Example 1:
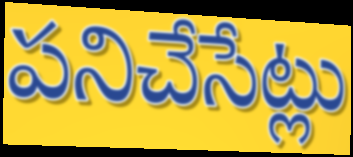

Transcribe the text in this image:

పనిచేసేట్లు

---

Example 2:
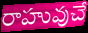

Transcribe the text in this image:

రాహువుచే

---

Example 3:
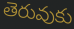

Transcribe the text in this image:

తెరువుకు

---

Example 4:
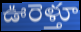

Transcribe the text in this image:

ఊరెళ్తూ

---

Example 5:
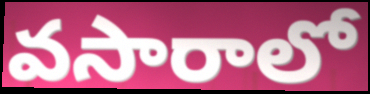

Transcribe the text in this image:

వసారాలో